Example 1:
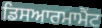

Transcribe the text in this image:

ਡਿਸਆਰਮਾਮੈਂਟ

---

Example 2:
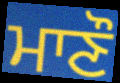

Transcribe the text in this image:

ਮਾਣੌ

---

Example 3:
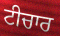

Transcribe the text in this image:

ਟੀਚਾਰ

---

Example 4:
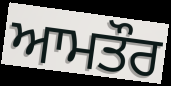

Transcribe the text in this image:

ਆਮਤੌਰ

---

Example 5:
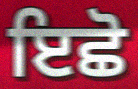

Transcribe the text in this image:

ਇਛੋ